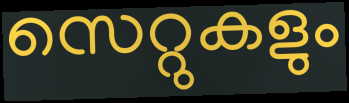
സെറ്റുകളും